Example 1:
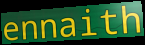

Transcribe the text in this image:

ennaith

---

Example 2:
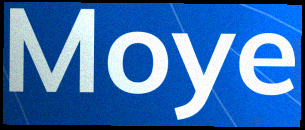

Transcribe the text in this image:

Moye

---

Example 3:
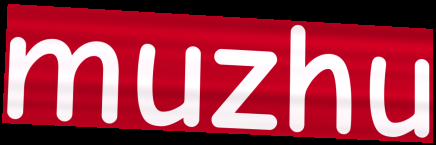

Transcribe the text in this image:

muzhu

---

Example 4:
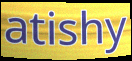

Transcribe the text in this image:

atishy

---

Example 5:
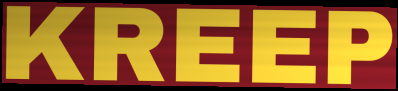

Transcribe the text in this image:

KREEP